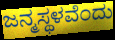
ಜನ್ಮಸ್ಥಳವೆಂದು